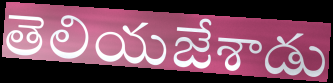
తెలియజేశాడు